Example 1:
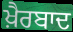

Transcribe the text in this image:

ਖ਼ੈਰਬਾਦ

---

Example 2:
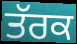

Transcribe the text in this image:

ਤੱਰਕ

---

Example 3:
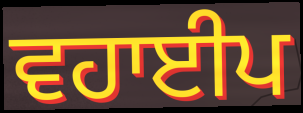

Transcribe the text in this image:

ਵਹਾਈਪ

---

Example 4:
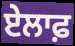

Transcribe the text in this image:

ਏਲਾਫ਼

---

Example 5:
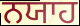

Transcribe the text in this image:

ਨਯਾਹ